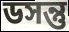
ডসন্তু